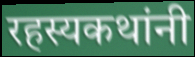
रहस्यकथांनी